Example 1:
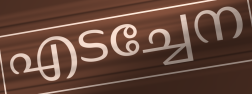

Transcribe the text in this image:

എടച്ചേന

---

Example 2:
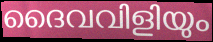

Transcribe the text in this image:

ദൈവവിളിയും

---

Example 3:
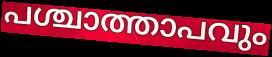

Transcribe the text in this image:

പശ്ചാത്താപവും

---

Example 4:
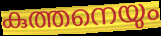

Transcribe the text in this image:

കുത്തനെയും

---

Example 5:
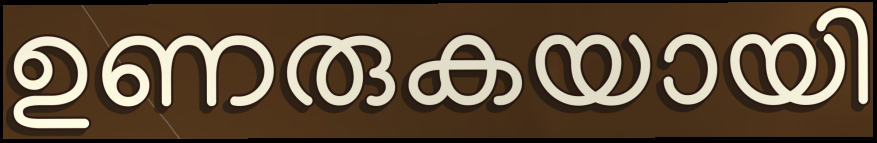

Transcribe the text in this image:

ഉണരുകയായി